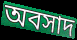
অবসাদ